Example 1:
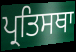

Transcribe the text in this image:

ਪ੍ਰਤਿਸਥਾ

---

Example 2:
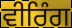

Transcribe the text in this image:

ਵੀਰਿੰਗ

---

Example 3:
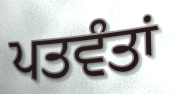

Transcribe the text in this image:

ਪਤਵੰਤਾਂ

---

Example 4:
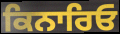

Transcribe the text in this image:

ਕਿਨਾਰਿਓ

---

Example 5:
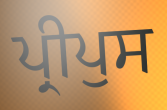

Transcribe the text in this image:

ਪ੍ਰੀਪੁਸ